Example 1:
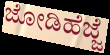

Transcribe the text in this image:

ಜೋಡಿಹೆಜ್ಜೆ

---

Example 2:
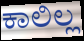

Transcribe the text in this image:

ಕಾಲಿಲ್ಲ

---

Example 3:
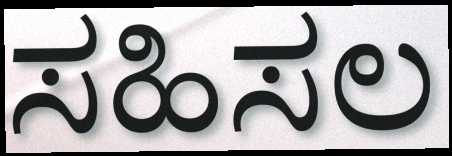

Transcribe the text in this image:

ಸಹಿಸಲ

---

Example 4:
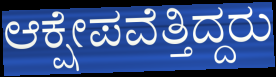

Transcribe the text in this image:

ಆಕ್ಷೇಪವೆತ್ತಿದ್ದರು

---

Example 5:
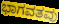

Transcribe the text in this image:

ಭಾಗವತವು